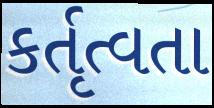
કર્તૃત્વતા